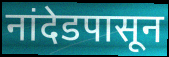
नांदेडपासून